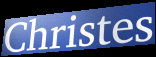
Christes